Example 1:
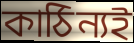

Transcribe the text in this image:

কাঠিন্যই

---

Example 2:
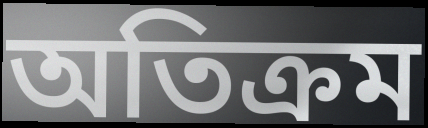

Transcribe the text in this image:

অতিক্ৰম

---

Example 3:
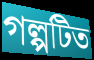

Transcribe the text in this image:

গল্পটিত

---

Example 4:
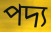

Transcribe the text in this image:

পদ্য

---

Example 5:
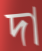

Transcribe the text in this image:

দা